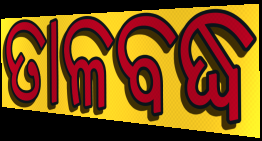
ତାଳବଦ୍ଧ